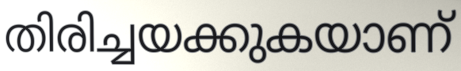
തിരിച്ചയക്കുകയാണ്